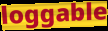
loggable